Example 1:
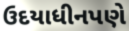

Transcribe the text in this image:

ઉદયાધીનપણે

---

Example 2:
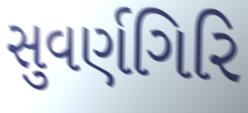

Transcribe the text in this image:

સુવર્ણગિરિ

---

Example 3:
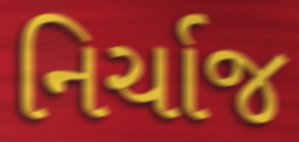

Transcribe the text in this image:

નિર્ચાજ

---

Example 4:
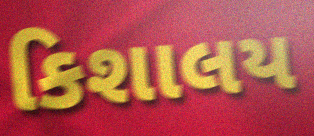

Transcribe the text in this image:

કિશાલય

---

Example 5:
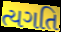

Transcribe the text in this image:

ત્યગતિ